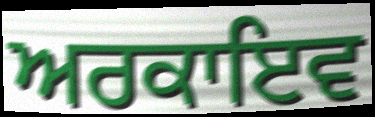
ਅਰਕਾਇਵ